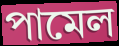
পামেল